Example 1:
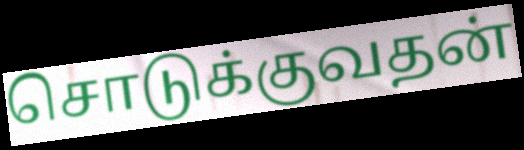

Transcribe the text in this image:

சொடுக்குவதன்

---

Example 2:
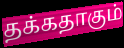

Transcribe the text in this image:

தக்கதாகும்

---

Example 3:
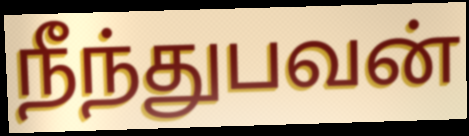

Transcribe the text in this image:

நீந்துபவன்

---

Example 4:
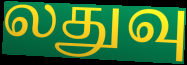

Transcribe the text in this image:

லதுவு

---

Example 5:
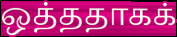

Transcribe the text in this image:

ஒத்ததாகக்